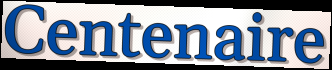
Centenaire